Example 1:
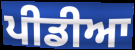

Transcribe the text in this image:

ਪੀਡੀਆ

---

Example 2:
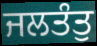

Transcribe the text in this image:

ਜਲਤੰਤੁ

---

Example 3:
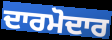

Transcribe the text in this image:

ਦਾਰਮੋਦਾਰ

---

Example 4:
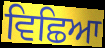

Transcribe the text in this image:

ਵਿਛਿਆ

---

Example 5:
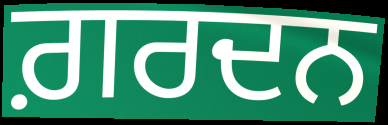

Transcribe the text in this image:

ਗ਼ਰਦਨ